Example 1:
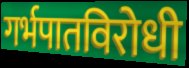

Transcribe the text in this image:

गर्भपातविरोधी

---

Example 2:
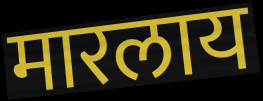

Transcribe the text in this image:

मारलाय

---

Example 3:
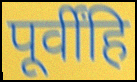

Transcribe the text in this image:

पूर्वींहि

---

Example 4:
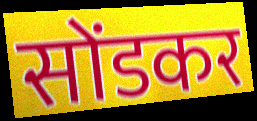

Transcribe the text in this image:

सोंडकर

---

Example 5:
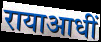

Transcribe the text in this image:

रायाआधीं